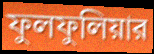
ফুলফুলিয়ার